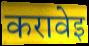
करावेइ